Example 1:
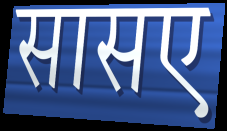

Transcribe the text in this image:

सासए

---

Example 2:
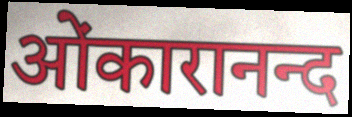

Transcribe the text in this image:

ओंकारानन्द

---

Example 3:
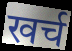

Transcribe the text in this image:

खर्च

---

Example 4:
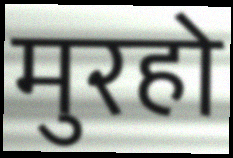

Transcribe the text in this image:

मुरहो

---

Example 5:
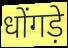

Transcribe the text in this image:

धोंगड़े